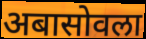
अबासोवला